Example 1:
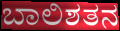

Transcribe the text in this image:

ಬಾಲಿಶತನ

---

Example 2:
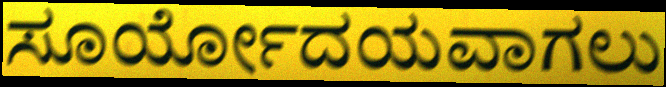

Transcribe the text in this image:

ಸೂರ್ಯೋದಯವಾಗಲು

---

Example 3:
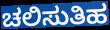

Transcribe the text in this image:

ಚಲಿಸುತಿಹ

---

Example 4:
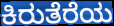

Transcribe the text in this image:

ಕಿರುತೆರೆಯ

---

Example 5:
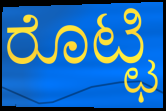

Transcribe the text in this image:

ರೊಟ್ಟಿ